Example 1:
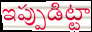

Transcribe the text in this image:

ఇప్పుడిట్టా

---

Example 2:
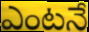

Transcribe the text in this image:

ఎంటనే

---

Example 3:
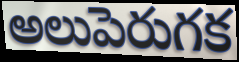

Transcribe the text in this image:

అలుపెరుగక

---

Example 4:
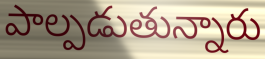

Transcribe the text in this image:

పాల్పడుతున్నారు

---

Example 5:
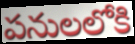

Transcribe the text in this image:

పనులలోకి